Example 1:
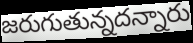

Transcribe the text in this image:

జరుగుతున్నదన్నారు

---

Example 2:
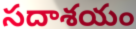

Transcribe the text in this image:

సదాశయం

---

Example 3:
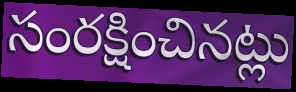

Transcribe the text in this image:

సంరక్షించినట్లు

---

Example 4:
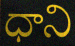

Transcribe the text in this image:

ధాని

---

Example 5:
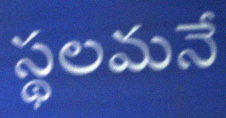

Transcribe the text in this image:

స్థలమనే